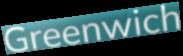
Greenwich